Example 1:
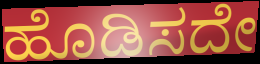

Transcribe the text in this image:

ಹೊಡಿಸದೇ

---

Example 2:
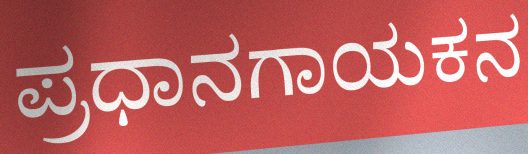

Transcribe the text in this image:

ಪ್ರಧಾನಗಾಯಕನ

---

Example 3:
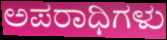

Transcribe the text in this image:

ಅಪರಾಧಿಗಳು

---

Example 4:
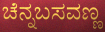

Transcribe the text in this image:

ಚೆನ್ನಬಸವಣ್ಣ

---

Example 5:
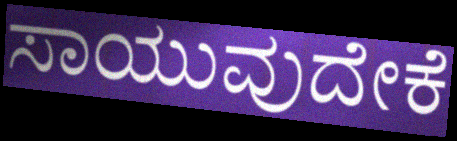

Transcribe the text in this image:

ಸಾಯುವುದೇಕೆ